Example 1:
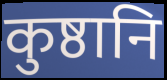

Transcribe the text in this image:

कुष्ठानि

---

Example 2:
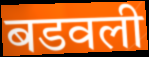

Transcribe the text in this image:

बडवली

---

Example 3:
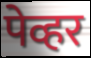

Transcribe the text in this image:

पेव्हर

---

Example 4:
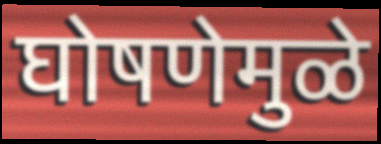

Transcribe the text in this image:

घोषणेमुळे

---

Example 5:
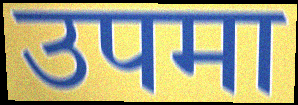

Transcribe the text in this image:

उपमा